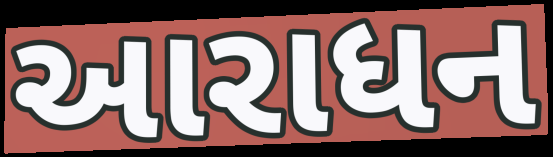
આરાધન